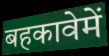
बहकावेमें